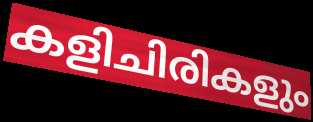
കളിചിരികളും